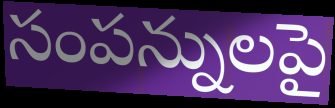
సంపన్నులపై